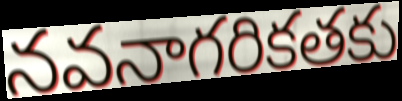
నవనాగరికతకు